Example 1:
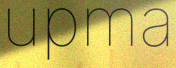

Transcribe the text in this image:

upma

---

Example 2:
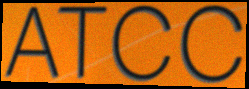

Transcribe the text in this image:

ATCC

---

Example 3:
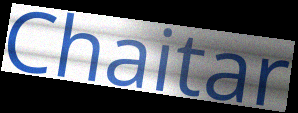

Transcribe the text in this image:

Chaitar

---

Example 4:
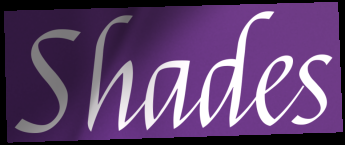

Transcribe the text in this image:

Shades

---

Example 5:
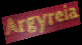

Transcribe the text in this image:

Argyreia